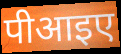
पीआइए